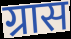
ग्रास